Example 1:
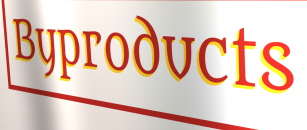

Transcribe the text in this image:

Byproducts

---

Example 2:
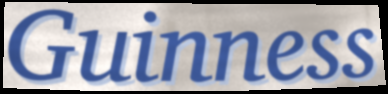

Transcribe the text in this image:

Guinness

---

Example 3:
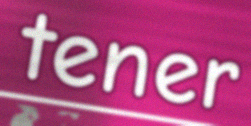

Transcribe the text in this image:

tener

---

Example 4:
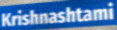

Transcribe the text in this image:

Krishnashtami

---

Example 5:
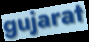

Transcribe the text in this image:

gujarat